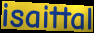
isaittal